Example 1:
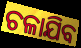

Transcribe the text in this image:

ଚଳାଯିବ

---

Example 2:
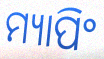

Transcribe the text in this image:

ମ୍ୟାପିଂ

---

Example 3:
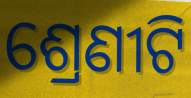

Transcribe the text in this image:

ଶ୍ରେଣୀଟି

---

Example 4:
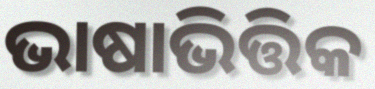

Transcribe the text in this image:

ଭାଷାଭିତ୍ତିକ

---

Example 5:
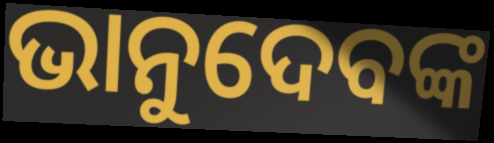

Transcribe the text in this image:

ଭାନୁଦେବଙ୍କ